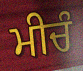
ਮੀਚੰ